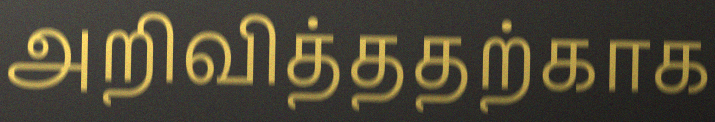
அறிவித்ததற்காக